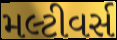
મલ્ટીવર્સ